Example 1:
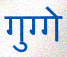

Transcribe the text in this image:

गुग्गे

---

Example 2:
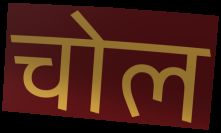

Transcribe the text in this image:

चोल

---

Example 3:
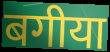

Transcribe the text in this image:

बगीया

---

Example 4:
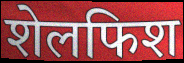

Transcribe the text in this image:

शेलफिश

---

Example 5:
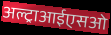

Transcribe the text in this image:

अल्ट्राआईएसओ